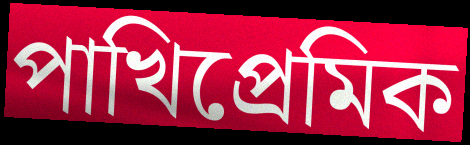
পাখিপ্রেমিক